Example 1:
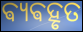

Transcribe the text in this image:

ଵ୍ଯଵହୃତ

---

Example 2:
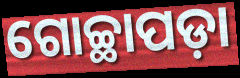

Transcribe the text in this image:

ଗୋଚ୍ଛାପଡ଼ା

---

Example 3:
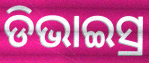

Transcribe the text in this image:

ଡିଭାଇସ୍ର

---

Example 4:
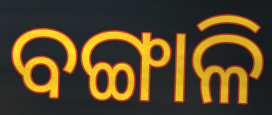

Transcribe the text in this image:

ବଙ୍ଗାଳି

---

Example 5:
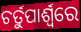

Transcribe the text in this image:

ଚର୍ତୁପାର୍ଶ୍ବରେ